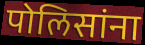
पोलिसांना